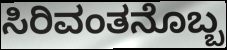
ಸಿರಿವಂತನೊಬ್ಬ